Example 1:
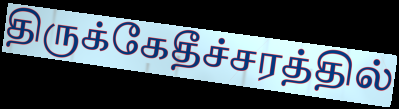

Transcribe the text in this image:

திருக்கேதீச்சரத்தில்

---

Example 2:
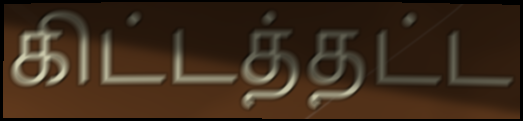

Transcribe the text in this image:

கிட்டத்தட்ட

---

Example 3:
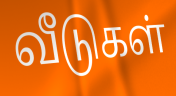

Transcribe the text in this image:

வீடுகள்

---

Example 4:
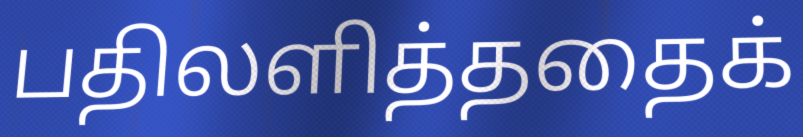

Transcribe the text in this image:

பதிலளித்ததைக்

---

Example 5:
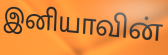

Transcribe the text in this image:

இனியாவின்